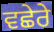
ਵਛੇਰੇ